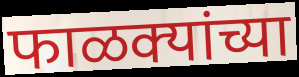
फाळक्यांच्या